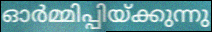
ഓർമ്മിപ്പിയ്ക്കുന്നു